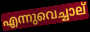
എന്നുവെച്ചാല്